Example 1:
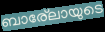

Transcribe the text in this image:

ബാര്ലോയുടെ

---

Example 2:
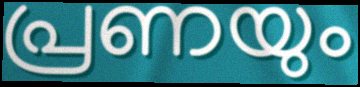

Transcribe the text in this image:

പ്രണയും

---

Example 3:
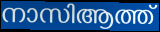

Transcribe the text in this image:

നാസിആത്ത്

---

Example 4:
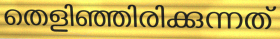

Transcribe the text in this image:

തെളിഞ്ഞിരിക്കുന്നത്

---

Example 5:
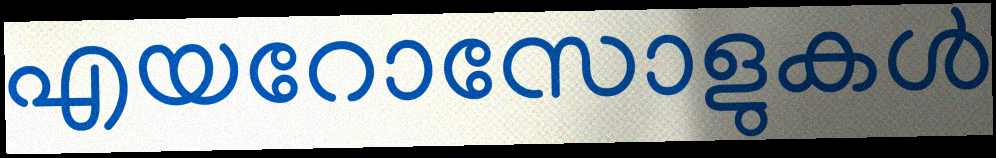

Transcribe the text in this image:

എയറോസോളുകൾ